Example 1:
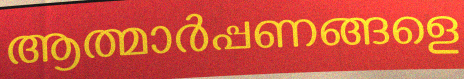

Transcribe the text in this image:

ആത്മാർപ്പണങ്ങളെ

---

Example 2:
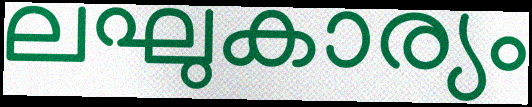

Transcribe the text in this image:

ലഘുകാര്യം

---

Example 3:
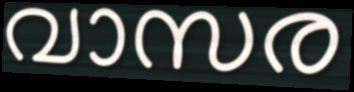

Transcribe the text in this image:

വാസര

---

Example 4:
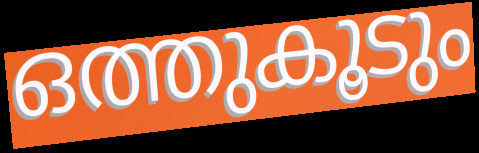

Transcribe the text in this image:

ഒത്തുകൂടും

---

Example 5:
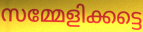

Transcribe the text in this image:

സമ്മേളിക്കട്ടെ